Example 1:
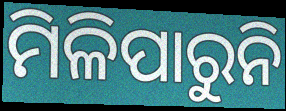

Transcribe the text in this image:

ମିଳିପାରୁନି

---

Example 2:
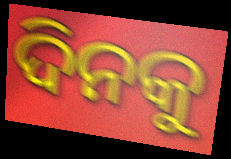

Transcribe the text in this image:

ଦିନକୁ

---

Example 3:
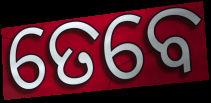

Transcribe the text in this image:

ତେବେ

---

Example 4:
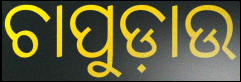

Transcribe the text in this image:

ଚାପୁଡ଼ାଉ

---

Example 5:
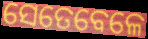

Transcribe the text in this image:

ସେତେବେଳେ